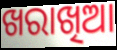
ଖରାଖିଆ